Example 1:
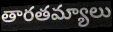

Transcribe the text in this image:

తారతమ్యాలు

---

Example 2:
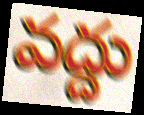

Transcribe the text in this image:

వద్దు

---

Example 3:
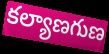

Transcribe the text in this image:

కల్యాణగుణ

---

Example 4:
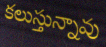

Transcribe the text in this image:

కలుస్తున్నావు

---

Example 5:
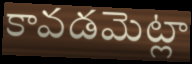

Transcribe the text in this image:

కావడమెట్లా